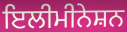
ਇਲੀਮੀਨੇਸ਼ਨ